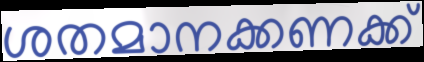
ശതമാനക്കണക്ക്